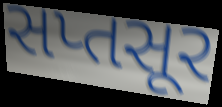
સપ્તસૂર